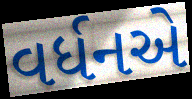
વર્ધનએ